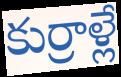
కుర్రాళ్లే